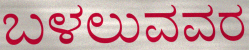
ಬಳಲುವವರ